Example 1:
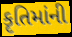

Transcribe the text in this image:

કૃતિમાંની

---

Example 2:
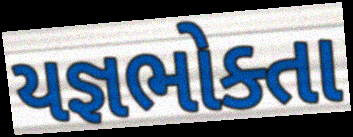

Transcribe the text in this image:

યજ્ઞભોક્તા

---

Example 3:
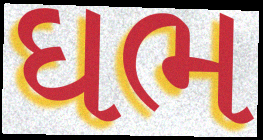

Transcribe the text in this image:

ઘભ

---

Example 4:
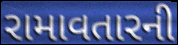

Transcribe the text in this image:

રામાવતારની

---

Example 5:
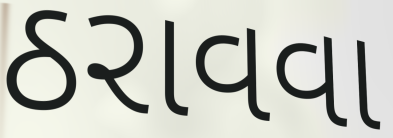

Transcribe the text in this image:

ઠરાવવા